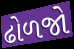
ઢોળજો